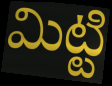
మిట్టి